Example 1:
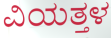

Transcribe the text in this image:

ವಿಯತ್ತಳ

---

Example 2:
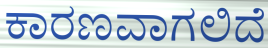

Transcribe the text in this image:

ಕಾರಣವಾಗಲಿದೆ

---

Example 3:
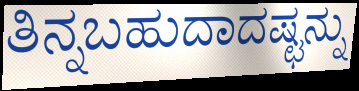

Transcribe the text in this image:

ತಿನ್ನಬಹುದಾದಷ್ಟನ್ನು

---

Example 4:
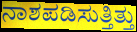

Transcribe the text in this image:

ನಾಶಪಡಿಸುತ್ತಿತ್ತು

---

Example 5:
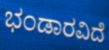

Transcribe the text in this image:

ಭಂಡಾರವಿದೆ